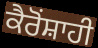
ਕੈਰੋਂਸ਼ਾਹੀ